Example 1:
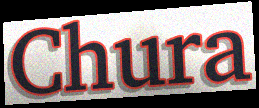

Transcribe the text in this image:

Chura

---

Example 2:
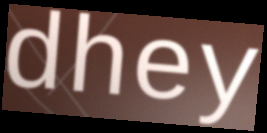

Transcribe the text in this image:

dhey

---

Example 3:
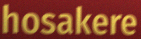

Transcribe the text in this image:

hosakere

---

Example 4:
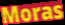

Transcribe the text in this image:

Moras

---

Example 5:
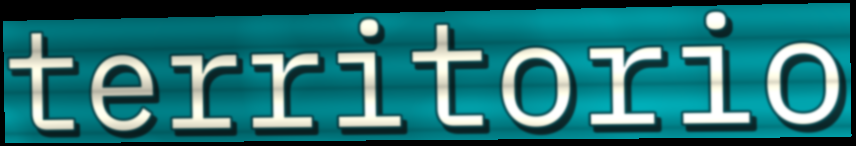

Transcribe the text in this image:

territorio